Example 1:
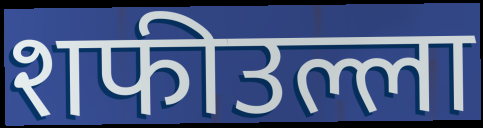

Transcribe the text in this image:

शफीउल्ला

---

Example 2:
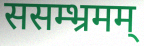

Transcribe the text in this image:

ससम्भ्रमम्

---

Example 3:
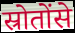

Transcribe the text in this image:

स्रोतोंसे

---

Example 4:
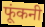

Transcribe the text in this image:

फूंकनी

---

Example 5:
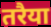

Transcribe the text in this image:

तरैया